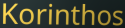
Korinthos